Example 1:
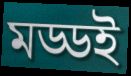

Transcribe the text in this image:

মড্ডই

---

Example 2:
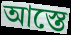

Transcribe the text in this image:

আস্তে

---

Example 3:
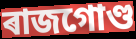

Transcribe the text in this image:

ৰাজগোণ্ড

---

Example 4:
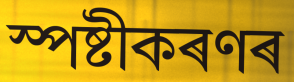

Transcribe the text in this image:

স্পষ্টীকৰণৰ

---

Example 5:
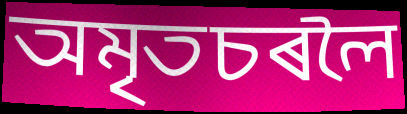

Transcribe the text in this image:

অমৃতচৰলৈ